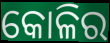
କୋଳିର